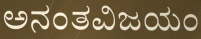
ಅನಂತವಿಜಯಂ